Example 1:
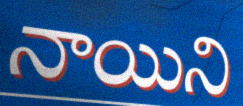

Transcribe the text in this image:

నాయిని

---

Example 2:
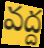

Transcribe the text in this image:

వద్ద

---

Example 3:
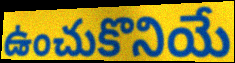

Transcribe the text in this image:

ఉంచుకొనియే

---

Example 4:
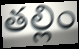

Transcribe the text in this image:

తల్లిం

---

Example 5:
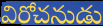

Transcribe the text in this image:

విరోచనుడు